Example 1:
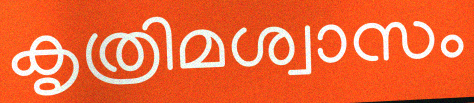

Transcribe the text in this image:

കൃത്രിമശ്വാസം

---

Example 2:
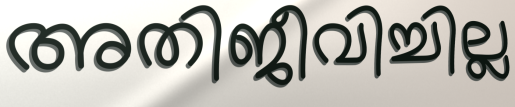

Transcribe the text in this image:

അതിജീവിച്ചില്ല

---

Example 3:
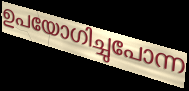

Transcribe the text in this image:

ഉപയോഗിച്ചുപോന്ന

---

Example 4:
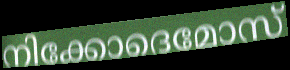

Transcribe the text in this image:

നിക്കോദെമോസ്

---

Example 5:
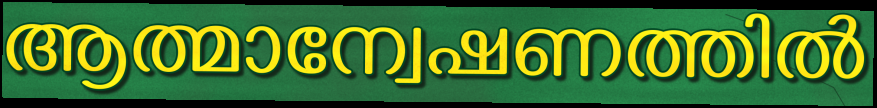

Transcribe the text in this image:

ആത്മാന്വേഷണത്തിൽ